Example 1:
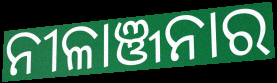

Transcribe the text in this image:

ନୀଳାଞ୍ଜନାର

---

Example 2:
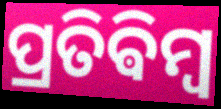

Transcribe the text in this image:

ପ୍ରତିଵିମ୍ବ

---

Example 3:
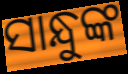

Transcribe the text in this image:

ସାନ୍ଧୁଙ୍କ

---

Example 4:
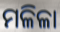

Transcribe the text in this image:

ମଳିଳା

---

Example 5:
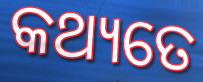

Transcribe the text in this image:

କଥ୍ୟତେ